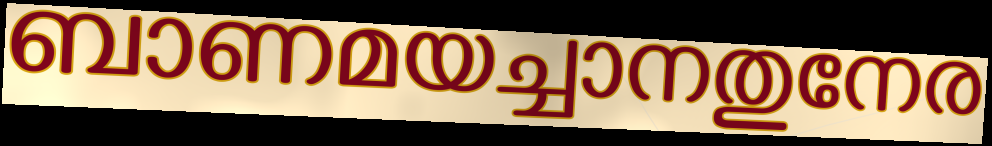
ബാണമയച്ചാനതുനേര